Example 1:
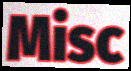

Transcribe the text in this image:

Misc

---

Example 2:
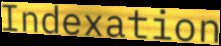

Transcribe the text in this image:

Indexation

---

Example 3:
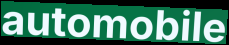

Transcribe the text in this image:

automobile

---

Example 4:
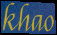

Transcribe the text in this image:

khao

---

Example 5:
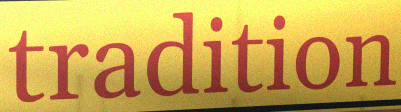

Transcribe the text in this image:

tradition